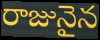
రాజునైన